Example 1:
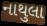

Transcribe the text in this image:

નાથુલા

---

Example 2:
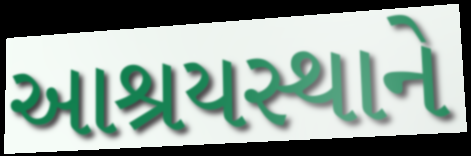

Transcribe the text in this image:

આશ્રયસ્થાને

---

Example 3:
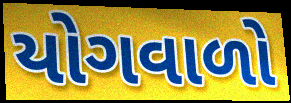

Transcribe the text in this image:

યોગવાળો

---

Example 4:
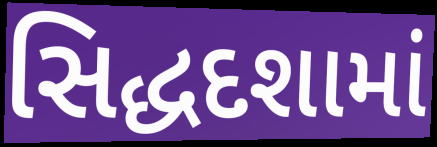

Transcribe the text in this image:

સિદ્ધદશામાં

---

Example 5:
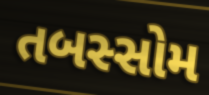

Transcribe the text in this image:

તબસ્સોમ